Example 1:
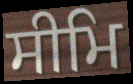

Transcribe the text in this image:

ਸੀਮਿ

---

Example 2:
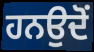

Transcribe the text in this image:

ਹਨਉਦੋਂ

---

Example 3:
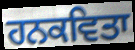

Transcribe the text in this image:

ਹਨਕਵਿਤਾ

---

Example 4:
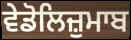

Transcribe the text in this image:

ਵੇਡੋਲਿਜ਼ੁਮਾਬ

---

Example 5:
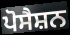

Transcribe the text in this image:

ਪੋਸੈਸ਼ਨ